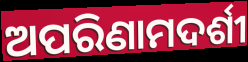
ଅପରିଣାମଦର୍ଶୀ